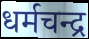
धर्मचन्द्र